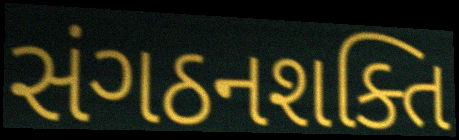
સંગઠનશક્તિ